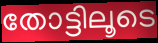
തോട്ടിലൂടെ